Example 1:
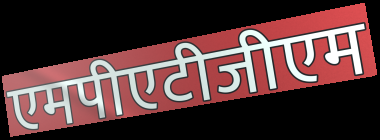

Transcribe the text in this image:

एमपीएटीजीएम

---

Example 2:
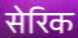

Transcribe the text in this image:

सेरिक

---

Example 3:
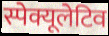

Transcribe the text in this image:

स्पेक्यूलेटिव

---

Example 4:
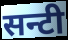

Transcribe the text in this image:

सन्टी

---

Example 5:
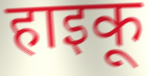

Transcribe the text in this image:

हाइकू